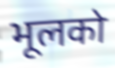
भूलको